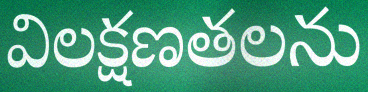
విలక్షణతలను